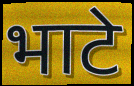
भाटे